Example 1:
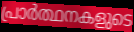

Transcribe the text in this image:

പ്രാർത്ഥനകളുടെ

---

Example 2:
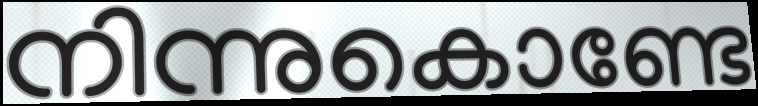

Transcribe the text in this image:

നിന്നുകൊണ്ടേ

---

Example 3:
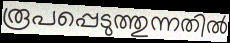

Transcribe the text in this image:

രൂപപ്പെടുത്തുന്നതിൽ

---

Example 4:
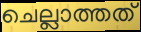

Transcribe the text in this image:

ചെല്ലാത്തത്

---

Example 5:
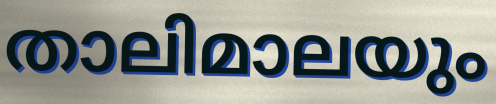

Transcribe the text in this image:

താലിമാലയും